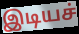
இடியச்